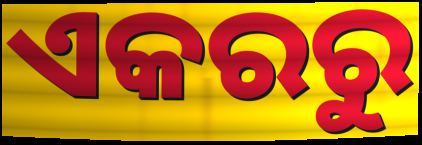
ଏକରରୁ